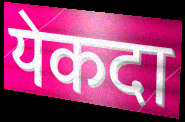
येकदा